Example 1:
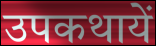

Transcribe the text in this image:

उपकथायें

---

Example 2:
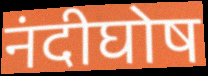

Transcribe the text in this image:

नंदीघोष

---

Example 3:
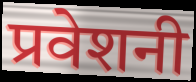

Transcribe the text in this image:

प्रवेशनी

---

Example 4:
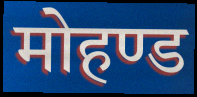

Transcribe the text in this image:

मोहण्ड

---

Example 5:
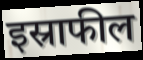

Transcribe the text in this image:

इस्राफील